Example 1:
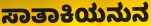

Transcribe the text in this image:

ಸಾತಾಕಿಯನುನ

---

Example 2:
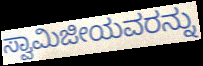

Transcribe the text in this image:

ಸ್ವಾಮಿಜೀಯವರನ್ನು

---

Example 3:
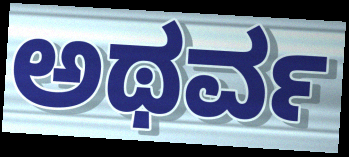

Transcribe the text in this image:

ಅಥರ್ವ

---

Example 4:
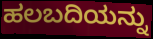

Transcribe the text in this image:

ಹಲಬದಿಯನ್ನು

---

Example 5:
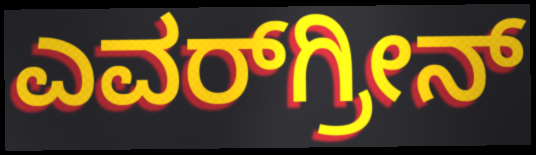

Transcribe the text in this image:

ಎವರ್‌ಗ್ರೀನ್